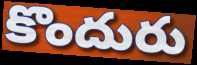
కొందురు